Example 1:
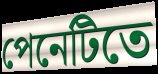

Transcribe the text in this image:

পেনেটিতে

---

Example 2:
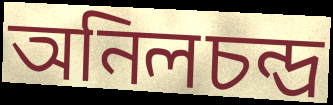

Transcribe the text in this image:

অনিলচন্দ্র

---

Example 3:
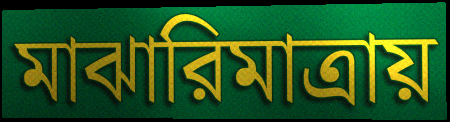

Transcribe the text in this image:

মাঝারিমাত্রায়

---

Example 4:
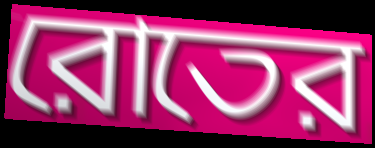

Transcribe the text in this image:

রোতের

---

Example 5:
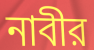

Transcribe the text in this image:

নাবীর